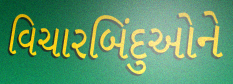
વિચારબિંદુઓને